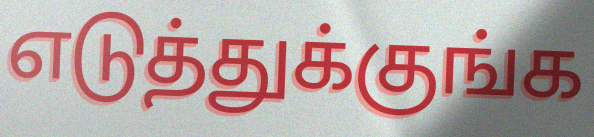
எடுத்துக்குங்க